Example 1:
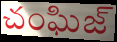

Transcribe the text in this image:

చంఘిజ్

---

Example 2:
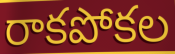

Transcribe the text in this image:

రాకపోకల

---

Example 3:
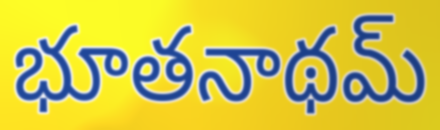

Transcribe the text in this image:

భూతనాథమ్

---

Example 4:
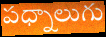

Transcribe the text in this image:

పధ్నాలుగు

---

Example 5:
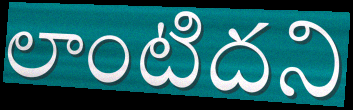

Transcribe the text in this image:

లాంటిదని